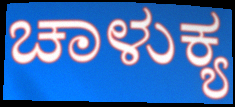
ಚಾಳುಕ್ಯ